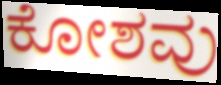
ಕೋಶವು